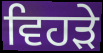
ਵਿਹੜੇ